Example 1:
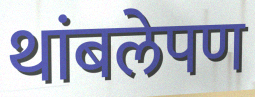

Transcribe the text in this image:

थांबलेपण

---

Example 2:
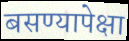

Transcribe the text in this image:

बसण्यापेक्षा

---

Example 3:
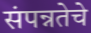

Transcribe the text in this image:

संपन्नतेचे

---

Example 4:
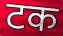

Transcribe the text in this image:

टक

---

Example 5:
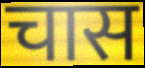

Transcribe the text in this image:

चास